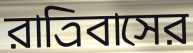
রাত্রিবাসের